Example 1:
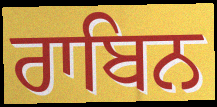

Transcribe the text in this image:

ਰਾਬਿਨ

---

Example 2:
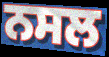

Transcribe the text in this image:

ਨਸਲ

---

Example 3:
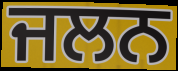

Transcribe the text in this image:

ਜਲਨ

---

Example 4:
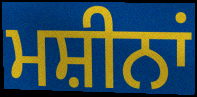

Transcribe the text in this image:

ਮਸ਼ੀਨਾਂ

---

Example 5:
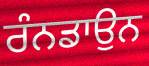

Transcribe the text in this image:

ਰੰਨਡਾਉਨ